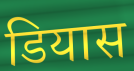
डियास